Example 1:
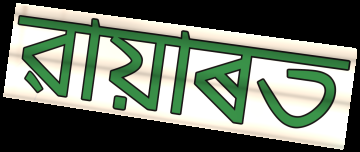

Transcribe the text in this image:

ৱায়াৰত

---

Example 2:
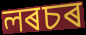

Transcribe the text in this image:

লৰচৰ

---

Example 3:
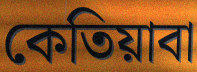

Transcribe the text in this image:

কেতিয়াবা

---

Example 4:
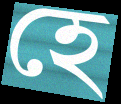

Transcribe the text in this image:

হে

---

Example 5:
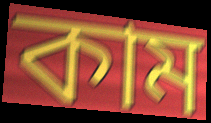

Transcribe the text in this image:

কাম